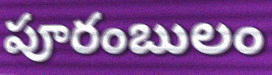
పూరంబులం